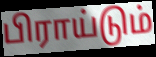
பிராய்டும்